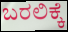
ಬರಲಿಕ್ಕೆ